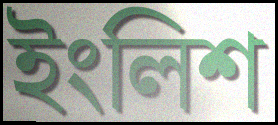
ইংলিশ